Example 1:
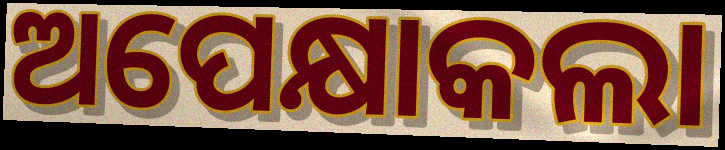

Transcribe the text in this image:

ଅପେକ୍ଷାକଲା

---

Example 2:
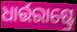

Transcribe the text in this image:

ଧାର୍ତ୍ତରାଷ୍ଟ୍ରେ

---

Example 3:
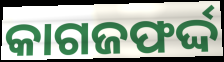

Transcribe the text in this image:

କାଗଜଫର୍ଦ୍ଦ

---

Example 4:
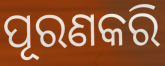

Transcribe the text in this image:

ପୂରଣକରି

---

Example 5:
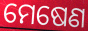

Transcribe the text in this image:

ମେଷେଣ